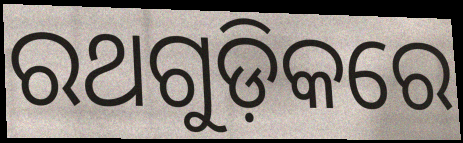
ରଥଗୁଡ଼ିକରେ